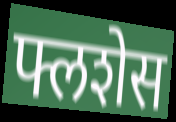
फ्लशेस